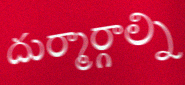
దుర్మార్గాల్ని